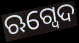
ଋଗ୍ବେଦ